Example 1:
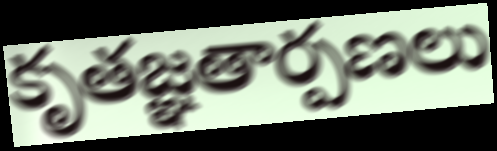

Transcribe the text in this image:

కృతజ్ఞతార్పణలు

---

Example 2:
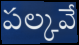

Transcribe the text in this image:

పల్కవే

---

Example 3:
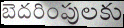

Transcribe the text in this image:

బెదరింపులకు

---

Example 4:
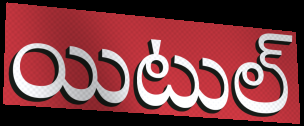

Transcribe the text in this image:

యిటుల్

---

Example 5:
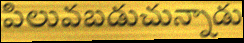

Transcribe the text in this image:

పిలువబడుచున్నాడు